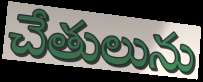
చేతులును